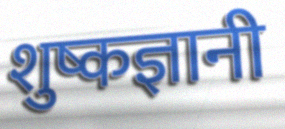
शुष्कज्ञानी